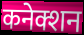
कनेक्‍शन